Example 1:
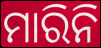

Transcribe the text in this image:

ମାରିନି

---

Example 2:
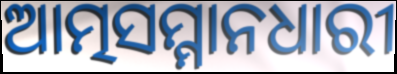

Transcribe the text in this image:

ଆତ୍ମସମ୍ମାନଧାରୀ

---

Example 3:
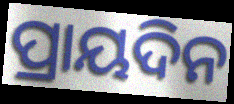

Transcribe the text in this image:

ପ୍ରାୟଦିନ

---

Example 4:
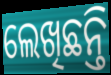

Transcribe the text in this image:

ଲେଖିଛନ୍ତି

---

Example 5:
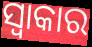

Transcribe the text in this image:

ସ୍ୱାକାର